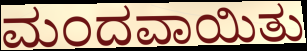
ಮಂದವಾಯಿತು